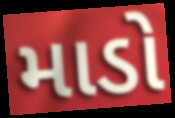
માડો